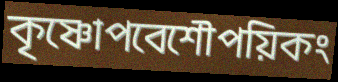
কৃষ্ণোপবেশৌপয়িকং